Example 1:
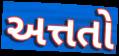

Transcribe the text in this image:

અત્તતો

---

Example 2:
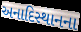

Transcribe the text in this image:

અનાદિસ્થાનના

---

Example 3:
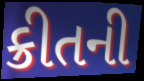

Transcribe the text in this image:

ક્રીતની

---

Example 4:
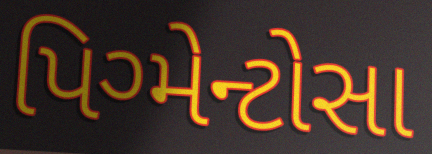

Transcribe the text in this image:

પિગ્મેન્ટોસા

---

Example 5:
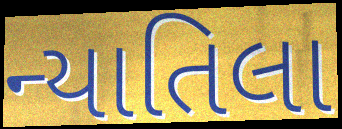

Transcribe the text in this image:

ન્યાતિલા